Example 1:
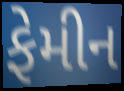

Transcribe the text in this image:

ફેમીન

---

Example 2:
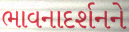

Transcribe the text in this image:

ભાવનાદર્શનને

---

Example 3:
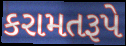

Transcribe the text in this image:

કરામતરૂપે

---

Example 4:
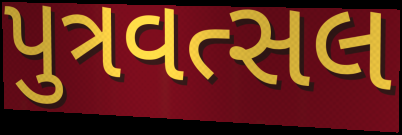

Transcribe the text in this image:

પુત્રવત્સલ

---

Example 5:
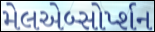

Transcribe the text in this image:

મેલએબ્સોર્પ્શન